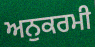
ਅਨੁਕਰਮੀ